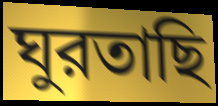
ঘুরতাছি